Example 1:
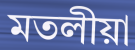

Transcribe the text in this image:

মতলীয়া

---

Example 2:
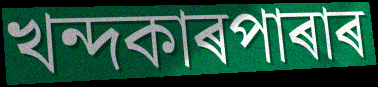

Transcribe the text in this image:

খন্দকাৰপাৰাৰ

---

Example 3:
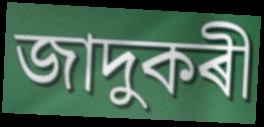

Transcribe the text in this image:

জাদুকৰী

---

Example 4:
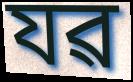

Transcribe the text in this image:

যৱ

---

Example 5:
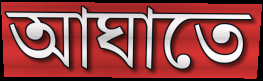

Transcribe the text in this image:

আঘাতে